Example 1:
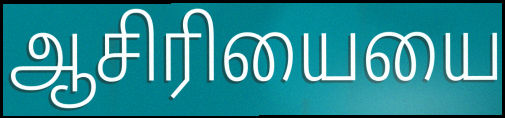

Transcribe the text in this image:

ஆசிரியையை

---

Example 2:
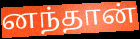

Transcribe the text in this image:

னந்தான்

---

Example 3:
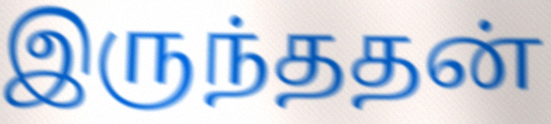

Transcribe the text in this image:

இருந்ததன்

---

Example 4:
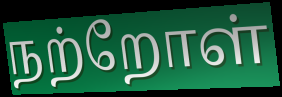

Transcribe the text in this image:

நற்றோள்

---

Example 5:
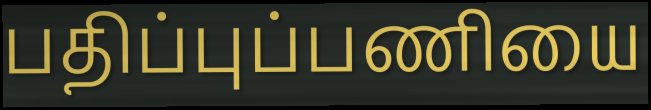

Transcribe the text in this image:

பதிப்புப்பணியை